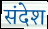
संदेश